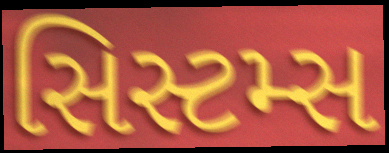
સિસ્ટમ્સ